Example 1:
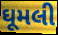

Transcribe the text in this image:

ઘૂમલી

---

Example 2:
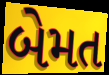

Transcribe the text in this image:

બેમત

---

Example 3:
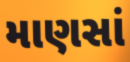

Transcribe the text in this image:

માણસાં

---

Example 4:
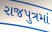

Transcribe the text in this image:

રાજપુત્રમાં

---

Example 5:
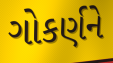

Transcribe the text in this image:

ગોકર્ણને